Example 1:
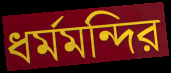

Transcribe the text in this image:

ধর্মমন্দির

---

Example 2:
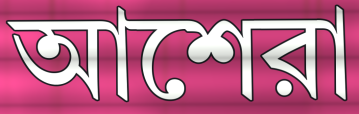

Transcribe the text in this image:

আশেরা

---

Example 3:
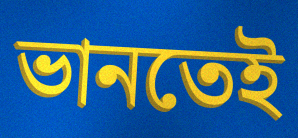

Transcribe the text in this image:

ভানতেই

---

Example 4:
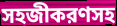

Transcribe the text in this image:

সহজীকরণসহ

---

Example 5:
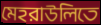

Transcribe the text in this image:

মেহরাউলিতে